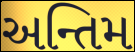
અન્તિમ